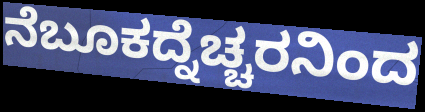
ನೆಬೂಕದ್ನೆಚ್ಚರನಿಂದ